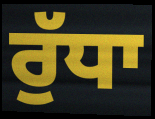
ਰੁੱਧਾ